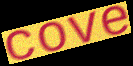
cove